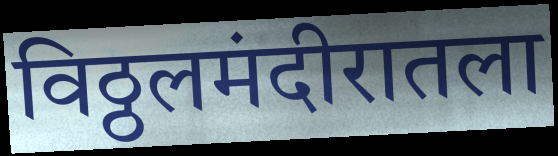
विठ्ठलमंदीरातला